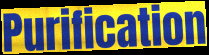
Purification